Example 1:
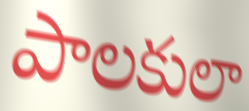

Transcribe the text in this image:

పాలకులా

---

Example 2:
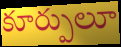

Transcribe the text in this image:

కూర్పులూ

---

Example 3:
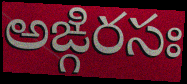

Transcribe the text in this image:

అఙ్గిరసః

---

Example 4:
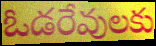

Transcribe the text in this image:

ఓడరేవులకు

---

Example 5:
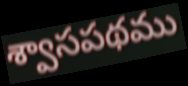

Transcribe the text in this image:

శ్వాసపథము